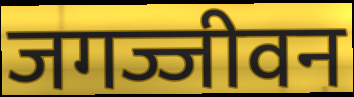
जगज्जीवन